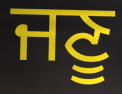
ਜਣੂ